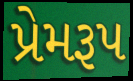
પ્રેમરૂપ